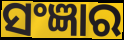
ସଂଜ୍ଞାର